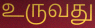
உருவது